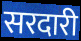
सरदारी